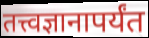
तत्त्वज्ञानापर्यंत